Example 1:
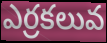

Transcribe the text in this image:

ఎర్రకలువ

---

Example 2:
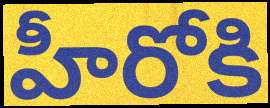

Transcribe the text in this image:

హీరోకి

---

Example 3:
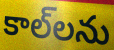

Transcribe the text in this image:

కాల్‌లను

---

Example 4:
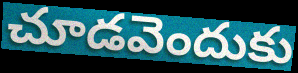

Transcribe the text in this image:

చూడవెందుకు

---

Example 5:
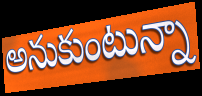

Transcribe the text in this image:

అనుకుంటున్నా